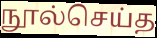
நூல்செய்த